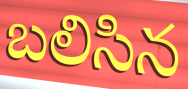
బలిసిన